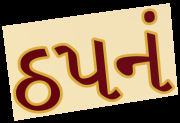
ઠપનં